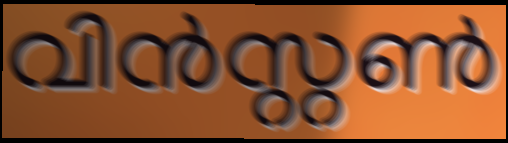
വിൻസ്റ്റൺ